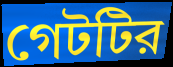
গেটটির